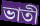
ভাতী